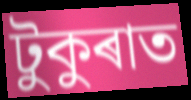
টুকুৰাত